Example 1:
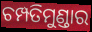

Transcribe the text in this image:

ଚମ୍ପତିମୁଣ୍ଡାର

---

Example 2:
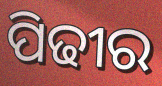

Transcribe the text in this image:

ପିଢୀର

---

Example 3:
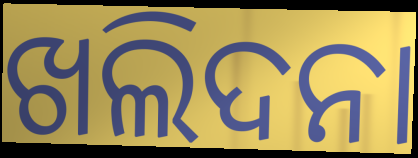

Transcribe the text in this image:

ଖଲିଦନା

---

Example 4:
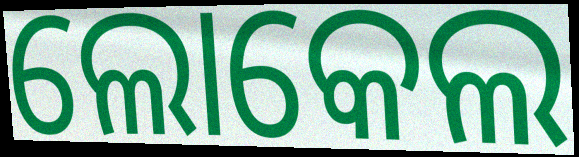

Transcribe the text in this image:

ଲୋକେଲ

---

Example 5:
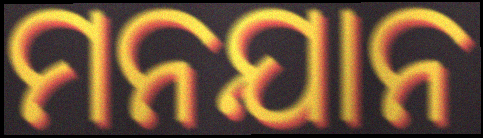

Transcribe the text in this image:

ମନଯାନ